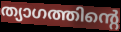
ത്യാഗത്തിന്റെ